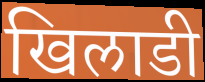
खिलाडी